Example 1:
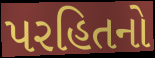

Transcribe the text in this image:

પરહિતનો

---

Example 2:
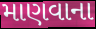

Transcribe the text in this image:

માણવાના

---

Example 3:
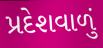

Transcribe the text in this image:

પ્રદેશવાળું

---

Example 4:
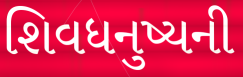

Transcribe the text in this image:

શિવધનુષ્યની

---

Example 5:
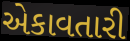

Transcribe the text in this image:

એકાવતારી